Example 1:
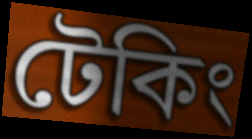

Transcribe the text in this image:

টেকিং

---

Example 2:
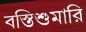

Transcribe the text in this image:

বস্তিশুমারি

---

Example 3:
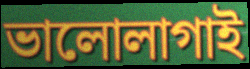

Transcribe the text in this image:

ভালোলাগাই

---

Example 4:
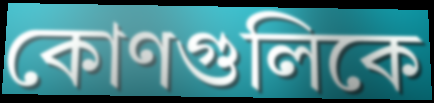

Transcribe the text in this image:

কোণগুলিকে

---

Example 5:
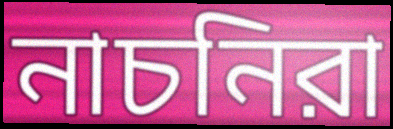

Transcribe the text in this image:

নাচনিরা